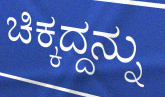
ಚಿಕ್ಕದ್ದನ್ನು